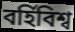
বর্হিবিশ্ব